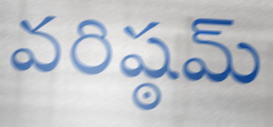
వరిష్ఠమ్